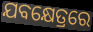
ଯବକ୍ଷେତ୍ରରେ